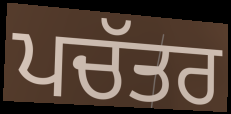
ਪਚੱਤਰ